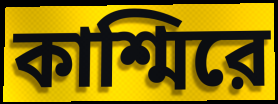
কাশ্মিরে